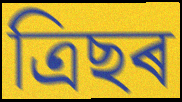
ত্ৰিছৰ